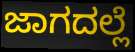
ಜಾಗದಲ್ಲೆ